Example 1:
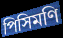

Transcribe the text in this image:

পিসিমণি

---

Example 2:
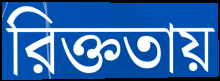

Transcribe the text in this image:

রিক্ততায়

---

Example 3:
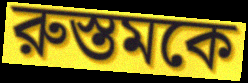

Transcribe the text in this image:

রুস্তমকে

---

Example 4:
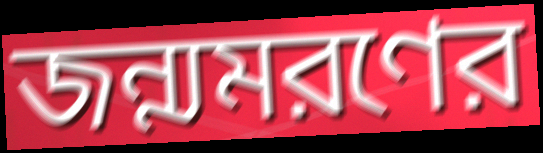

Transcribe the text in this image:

জন্মমরণের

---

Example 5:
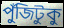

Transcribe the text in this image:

পুঁজিটুকু